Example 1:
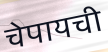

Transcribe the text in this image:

चेपायची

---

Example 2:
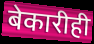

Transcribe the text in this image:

बेकारीही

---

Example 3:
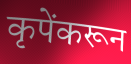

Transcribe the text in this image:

कृपेंकरून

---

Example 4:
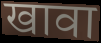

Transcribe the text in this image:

खावा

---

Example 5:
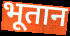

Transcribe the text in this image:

भूतान